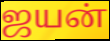
ஜயன்